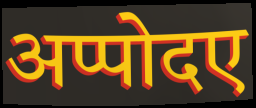
अप्पोदए